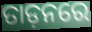
ତାଡ଼ନରେ